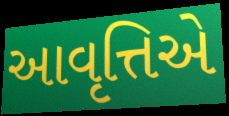
આવૃત્તિએ